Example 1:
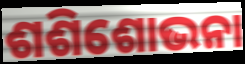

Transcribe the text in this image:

ଶଶିଶୋଭନା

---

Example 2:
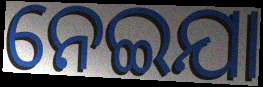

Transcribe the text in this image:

ନେଇଯା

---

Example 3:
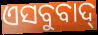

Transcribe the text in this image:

ଏସବୁବାଦ୍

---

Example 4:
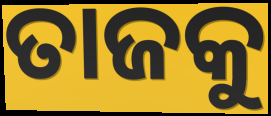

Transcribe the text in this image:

ତାଜକୁ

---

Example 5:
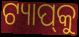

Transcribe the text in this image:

ଟ୍ୟାପ୍‌କୁ